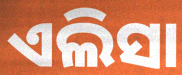
ଏଲିସା